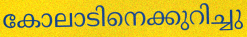
കോലാടിനെക്കുറിച്ചു